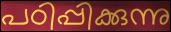
പഠിപ്പിക്കുന്നു